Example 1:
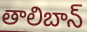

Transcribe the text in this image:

తాలిబాన్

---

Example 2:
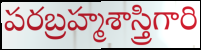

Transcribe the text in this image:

పరబ్రహ్మశాస్త్రిగారి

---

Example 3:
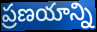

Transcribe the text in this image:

ప్రణయాన్ని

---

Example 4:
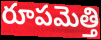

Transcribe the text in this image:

రూపమెత్తి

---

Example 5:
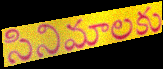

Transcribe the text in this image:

సినిమాలకు